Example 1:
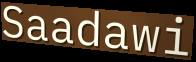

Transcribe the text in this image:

Saadawi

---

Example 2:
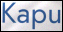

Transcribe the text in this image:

Kapu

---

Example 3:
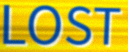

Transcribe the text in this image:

LOST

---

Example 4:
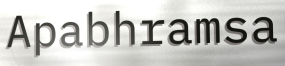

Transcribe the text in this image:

Apabhramsa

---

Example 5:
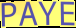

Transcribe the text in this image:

PAYE